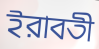
ইরাবতী